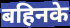
बहिनके